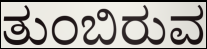
ತುಂಬಿರುವ